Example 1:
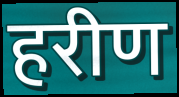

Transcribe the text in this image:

हरीण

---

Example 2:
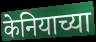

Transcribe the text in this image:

केनियाच्या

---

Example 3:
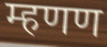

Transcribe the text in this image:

म्हणण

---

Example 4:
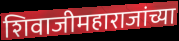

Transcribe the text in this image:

शिवाजीमहाराजांच्या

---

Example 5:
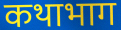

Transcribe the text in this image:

कथाभाग